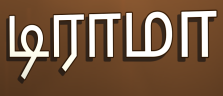
டிராமா